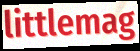
littlemag